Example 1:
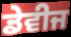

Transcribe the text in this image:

ਡੇਵੀਜ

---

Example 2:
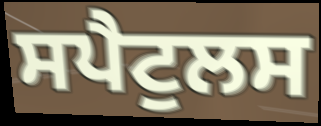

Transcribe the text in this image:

ਸਪੈਟੁਲਸ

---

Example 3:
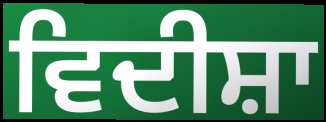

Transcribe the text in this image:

ਵਿਦੀਸ਼ਾ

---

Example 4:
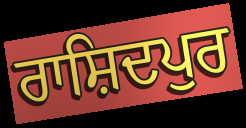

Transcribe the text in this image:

ਰਾਸ਼ਿਦਪੁਰ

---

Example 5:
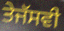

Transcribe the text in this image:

ਤੇਜੱਸਵੀ